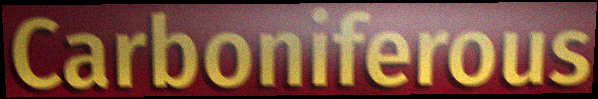
Carboniferous